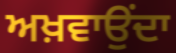
ਅਖ਼ਵਾਉਂਦਾ